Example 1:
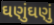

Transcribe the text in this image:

ઘણુંઘણું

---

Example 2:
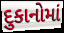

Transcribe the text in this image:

દુકાનોમાં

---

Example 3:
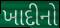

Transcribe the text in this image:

ખાદીનો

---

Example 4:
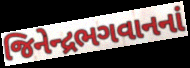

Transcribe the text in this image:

જિનેન્દ્રભગવાનનાં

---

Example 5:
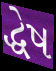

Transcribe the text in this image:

દ્ધેષ